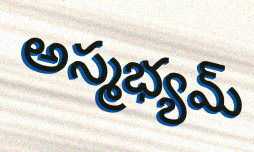
అస్మభ్యమ్